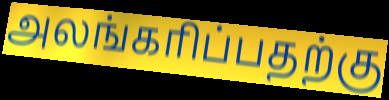
அலங்கரிப்பதற்கு